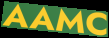
AAMC